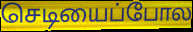
செடியைப்போல